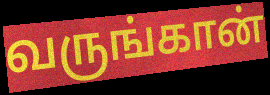
வருங்கான்